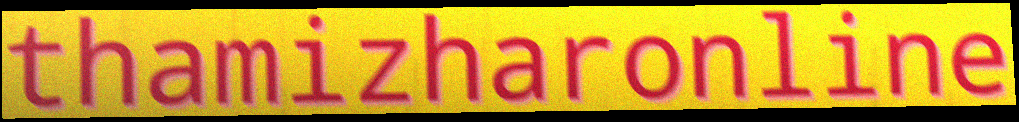
thamizharonline